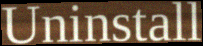
Uninstall